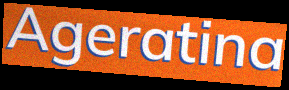
Ageratina